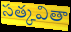
సత్కవితా